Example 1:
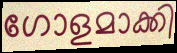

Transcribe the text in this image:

ഗോളമാക്കി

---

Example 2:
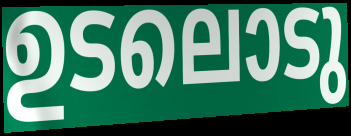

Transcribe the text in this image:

ഉടലൊടു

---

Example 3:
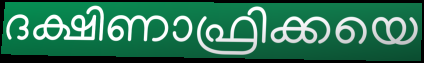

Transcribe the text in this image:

ദക്ഷിണാഫ്രിക്കയെ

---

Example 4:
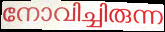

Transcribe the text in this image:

നോവിച്ചിരുന്ന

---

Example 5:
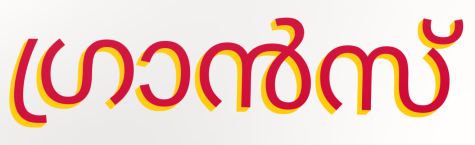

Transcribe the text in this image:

ഗ്രാൻസ്